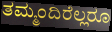
ತಮ್ಮಂದಿರೆಲ್ಲರೂ